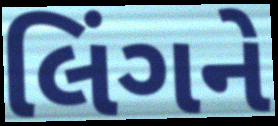
લિંગને